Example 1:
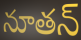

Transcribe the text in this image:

నూతన్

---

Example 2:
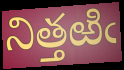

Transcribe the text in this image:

నిత్తఱిఁ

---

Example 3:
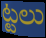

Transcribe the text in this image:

ట్టలు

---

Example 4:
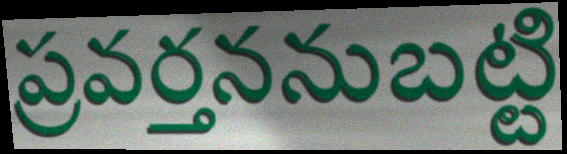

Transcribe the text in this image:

ప్రవర్తననుబట్టి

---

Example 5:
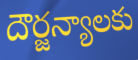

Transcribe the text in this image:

దౌర్జన్యాలకు